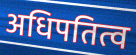
अधिपतित्व